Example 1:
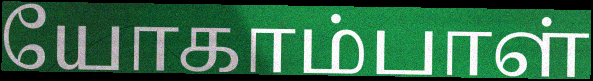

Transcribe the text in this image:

யோகாம்பாள்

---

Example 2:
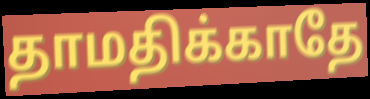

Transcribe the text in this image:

தாமதிக்காதே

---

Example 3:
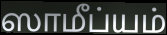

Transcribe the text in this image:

ஸாமீப்யம்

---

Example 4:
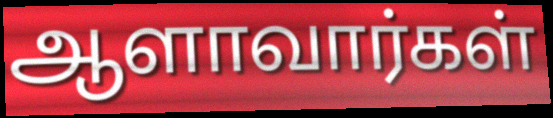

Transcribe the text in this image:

ஆளாவார்கள்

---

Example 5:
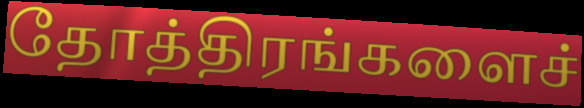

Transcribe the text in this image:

தோத்திரங்களைச்